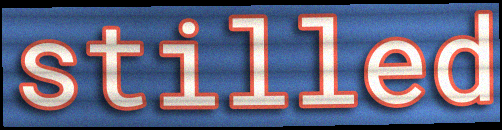
stilled